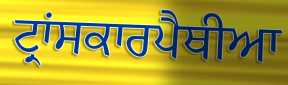
ਟ੍ਰਾਂਸਕਾਰਪੈਥੀਆ